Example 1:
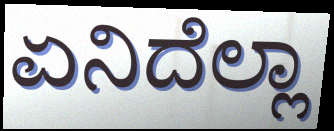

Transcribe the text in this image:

ಏನಿದೆಲ್ಲಾ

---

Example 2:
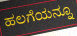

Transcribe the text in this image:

ಹಲಗೆಯನ್ನೂ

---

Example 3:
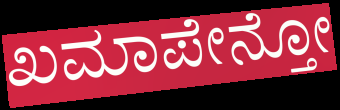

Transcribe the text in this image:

ಖಮಾಪೇನ್ತೋ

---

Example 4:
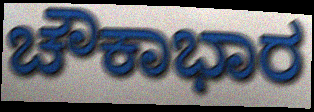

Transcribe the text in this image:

ಚೌಕಾಭಾರ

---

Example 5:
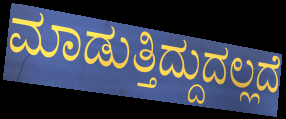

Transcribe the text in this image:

ಮಾಡುತ್ತಿದ್ದುದಲ್ಲದೆ